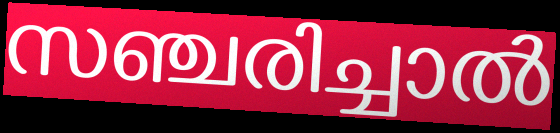
സഞ്ചരിച്ചാൽ